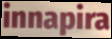
innapira